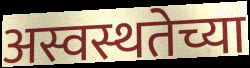
अस्वस्थतेच्या